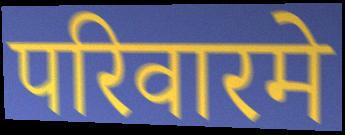
परिवारमे